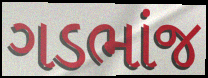
ગડભાંજ